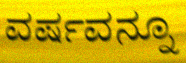
ವರ್ಷವನ್ನೂ